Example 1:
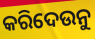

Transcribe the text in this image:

କରିଦେଉନୁ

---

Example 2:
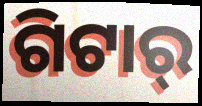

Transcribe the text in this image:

ଗିଟାର୍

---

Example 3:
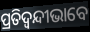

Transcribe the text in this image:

ପ୍ରତିଦ୍ୱନ୍ଦୀଭାବେ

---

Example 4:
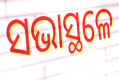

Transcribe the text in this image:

ସଭାସ୍ଥଳେ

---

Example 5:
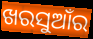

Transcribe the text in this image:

ଖରସୁଆଁର